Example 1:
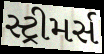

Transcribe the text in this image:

સ્ટ્રીમર્સ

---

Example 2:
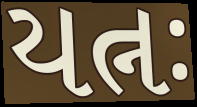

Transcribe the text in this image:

યત્નઃ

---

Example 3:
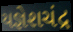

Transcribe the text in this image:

યજ્ઞેશચંદ્ર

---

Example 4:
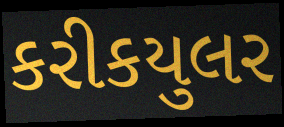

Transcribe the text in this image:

કરીકયુલર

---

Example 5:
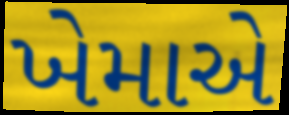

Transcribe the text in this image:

ખેમાએ